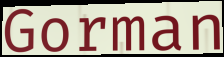
Gorman